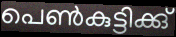
പെൺകുട്ടിക്കു്